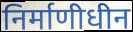
निर्माणीधीन